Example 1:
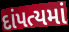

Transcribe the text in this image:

દાંપત્યમાં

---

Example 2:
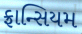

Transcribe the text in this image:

ફ્રાન્સિયમ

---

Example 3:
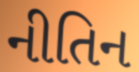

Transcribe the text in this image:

નીતિન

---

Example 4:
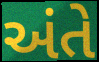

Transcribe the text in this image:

અંતે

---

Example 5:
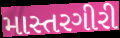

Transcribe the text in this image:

માસ્તરગીરી